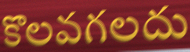
కొలవగలదు